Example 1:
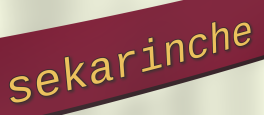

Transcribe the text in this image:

sekarinche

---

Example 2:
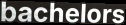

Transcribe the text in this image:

bachelors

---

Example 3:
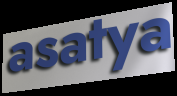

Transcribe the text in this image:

asatya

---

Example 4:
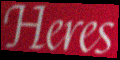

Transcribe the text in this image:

Heres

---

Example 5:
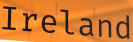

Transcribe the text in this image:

Ireland